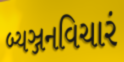
બ્યઞ્જનવિચારં